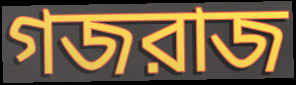
গজরাজ